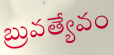
బ్రువత్యేవం